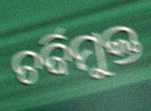
ଚର୍ବିମୁକ୍ତ